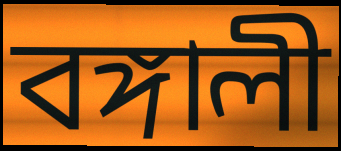
বঙ্গালী